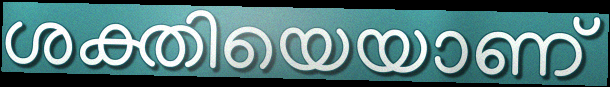
ശക്തിയെയാണ്